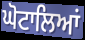
ਘੋਟਾਲਿਆਂ